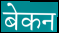
बेकन